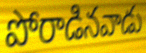
పోరాడినవాడు